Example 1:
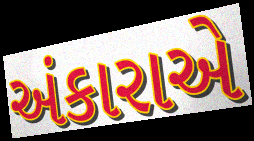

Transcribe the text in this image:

અંકારાએ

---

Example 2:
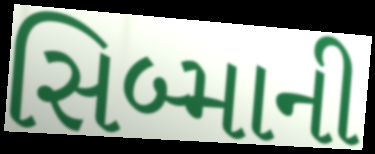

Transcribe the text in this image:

સિબ્માની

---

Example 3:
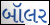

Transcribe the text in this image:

બૉલર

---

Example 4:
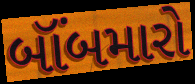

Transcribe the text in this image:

બૉંબમારો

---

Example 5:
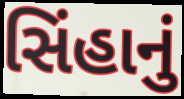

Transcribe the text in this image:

સિંહાનું